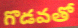
గొడవతో